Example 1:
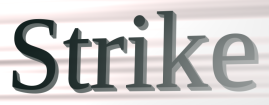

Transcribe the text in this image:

Strike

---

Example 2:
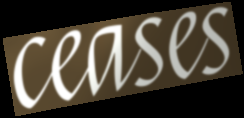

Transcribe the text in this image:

ceases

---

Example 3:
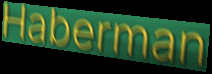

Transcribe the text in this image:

Haberman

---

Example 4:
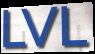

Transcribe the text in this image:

LVL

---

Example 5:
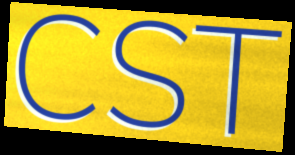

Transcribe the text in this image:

CST